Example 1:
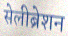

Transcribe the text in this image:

सेलीब्रेशन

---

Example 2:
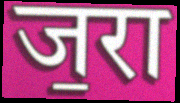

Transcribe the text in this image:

ज॒रा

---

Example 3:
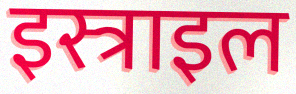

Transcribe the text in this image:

इस्त्राइल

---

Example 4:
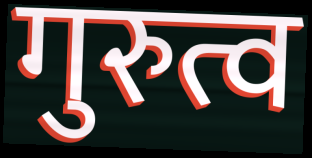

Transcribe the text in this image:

गुरुत्व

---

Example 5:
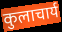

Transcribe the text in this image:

कुलाचार्य